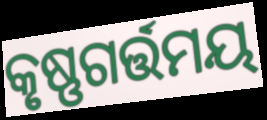
କୃଷ୍ଣଗର୍ତ୍ତମୟ